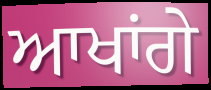
ਆਖਾਂਗੇ